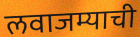
लवाजम्याची